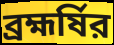
ব্রহ্মর্ষির